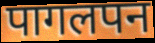
पागलपन